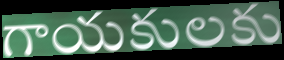
గాయకులకు